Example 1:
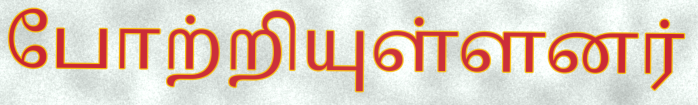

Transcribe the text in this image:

போற்றியுள்ளனர்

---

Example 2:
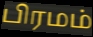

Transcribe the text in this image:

பிரமம்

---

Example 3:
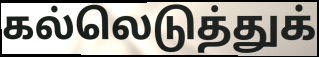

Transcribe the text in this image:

கல்லெடுத்துக்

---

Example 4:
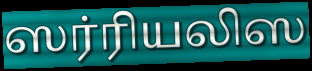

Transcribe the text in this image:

ஸர்ரியலிஸ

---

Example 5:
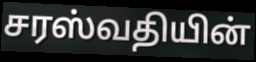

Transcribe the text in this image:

சரஸ்வதியின்